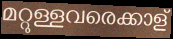
മറ്റുള്ളവരെക്കാള്